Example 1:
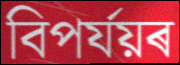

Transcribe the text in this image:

বিপৰ্যয়ৰ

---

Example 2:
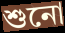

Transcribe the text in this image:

শুনো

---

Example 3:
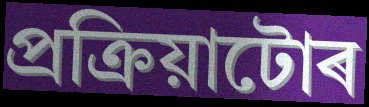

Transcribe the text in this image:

প্ৰক্ৰিয়াটোৰ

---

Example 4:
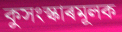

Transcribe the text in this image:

কুসংস্কাৰমূলক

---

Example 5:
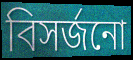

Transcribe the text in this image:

বিসৰ্জনো